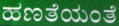
ಹಣತೆಯಂತೆ